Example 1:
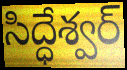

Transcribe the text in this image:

సిద్ధేశ్వర్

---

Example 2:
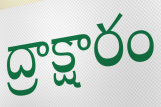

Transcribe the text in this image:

ద్రాక్షారం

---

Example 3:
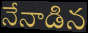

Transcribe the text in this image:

నేనాడిన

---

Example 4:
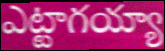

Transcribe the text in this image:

ఎట్టాగయ్యా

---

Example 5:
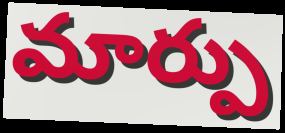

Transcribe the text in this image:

మార్పు